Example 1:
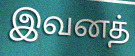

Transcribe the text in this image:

இவனத்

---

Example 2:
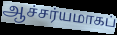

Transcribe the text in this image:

ஆச்சர்யமாகப்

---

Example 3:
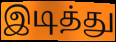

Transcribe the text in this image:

இடித்து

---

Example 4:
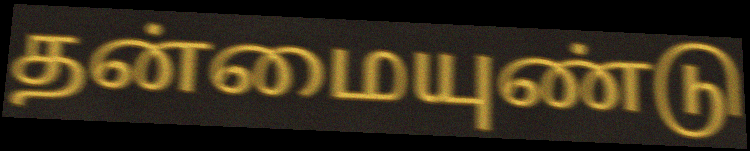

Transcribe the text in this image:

தன்மையுண்டு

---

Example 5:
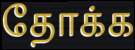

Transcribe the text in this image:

தோக்க